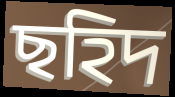
ছহিদ